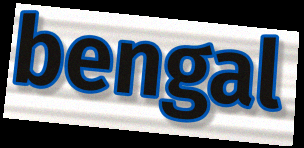
bengal